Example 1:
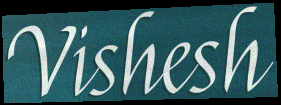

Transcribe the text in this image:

Vishesh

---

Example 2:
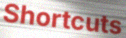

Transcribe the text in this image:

Shortcuts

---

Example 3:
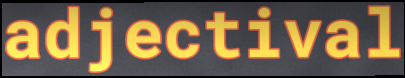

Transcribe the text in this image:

adjectival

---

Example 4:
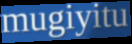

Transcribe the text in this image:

mugiyitu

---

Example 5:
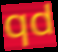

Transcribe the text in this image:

qd